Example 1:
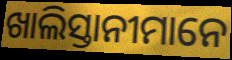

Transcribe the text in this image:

ଖାଲିସ୍ତାନୀମାନେ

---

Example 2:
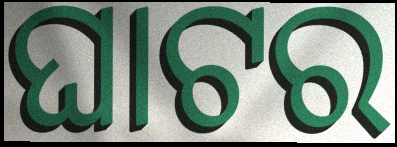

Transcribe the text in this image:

ଘାଟର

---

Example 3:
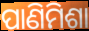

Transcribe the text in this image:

ପାଣିମିଶା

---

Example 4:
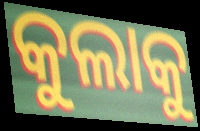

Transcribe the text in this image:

କୁଲାକୁ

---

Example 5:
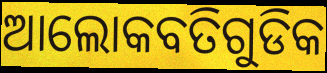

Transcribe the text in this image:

ଆଲୋକବତିଗୁଡିକ